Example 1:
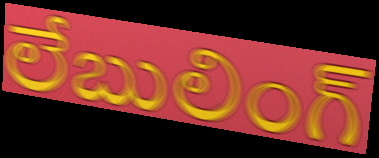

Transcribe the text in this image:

లేబులింగ్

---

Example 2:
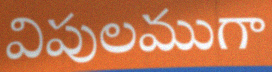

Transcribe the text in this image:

విపులముగా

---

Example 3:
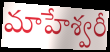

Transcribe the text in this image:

మాహేశ్వరీ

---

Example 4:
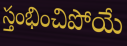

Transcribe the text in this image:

స్తంభించిపోయే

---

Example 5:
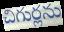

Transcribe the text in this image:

చిగుర్లను